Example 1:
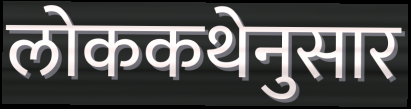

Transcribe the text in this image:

लोककथेनुसार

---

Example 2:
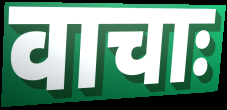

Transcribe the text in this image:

वाचाः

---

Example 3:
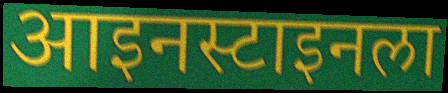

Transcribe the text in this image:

आइनस्टाइनला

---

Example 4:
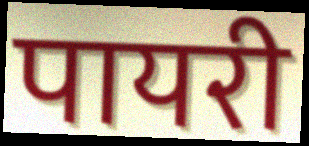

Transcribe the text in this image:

पायरी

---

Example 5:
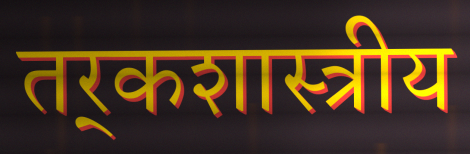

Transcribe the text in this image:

तर्कशास्त्रीय